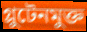
গ্লুটেনমুক্ত